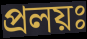
প্রলয়ঃ